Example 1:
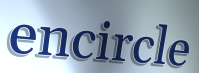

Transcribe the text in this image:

encircle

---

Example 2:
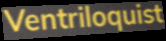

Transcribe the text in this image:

Ventriloquist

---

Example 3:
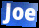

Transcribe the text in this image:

Joe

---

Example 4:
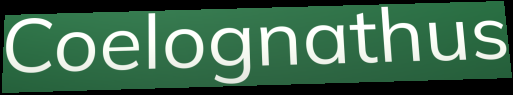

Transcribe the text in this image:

Coelognathus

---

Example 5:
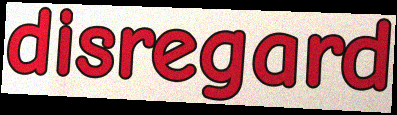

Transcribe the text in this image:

disregard